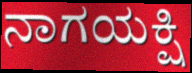
ನಾಗಯಕ್ಷಿ